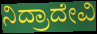
ನಿದ್ರಾದೇವಿ